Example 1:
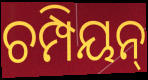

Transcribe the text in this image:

ଚମ୍ପିୟନ୍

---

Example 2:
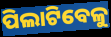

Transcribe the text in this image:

ପିଲାଟିବେଳୁ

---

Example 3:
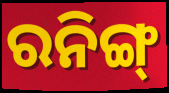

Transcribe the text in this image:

ରନିଙ୍ଗ୍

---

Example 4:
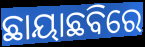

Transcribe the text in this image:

ଛାୟାଛବିରେ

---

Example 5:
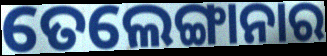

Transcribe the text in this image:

ତେଲେଙ୍ଗାନାର